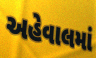
અહેવાલમાં